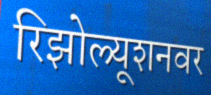
रिझोल्यूशनवर